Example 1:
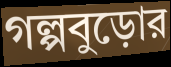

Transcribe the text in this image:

গল্পবুড়োর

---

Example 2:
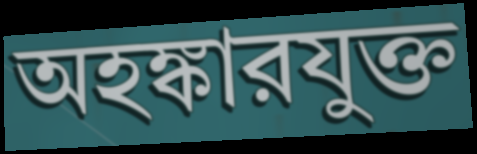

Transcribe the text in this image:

অহঙ্কারযুক্ত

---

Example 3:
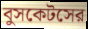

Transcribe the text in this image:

বুসকেটসের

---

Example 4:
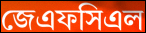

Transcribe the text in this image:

জেএফসিএল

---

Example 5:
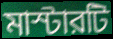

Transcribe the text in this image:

মাস্টারটি